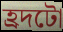
হ্ৰদটো